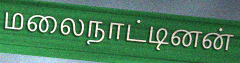
மலைநாட்டினன்